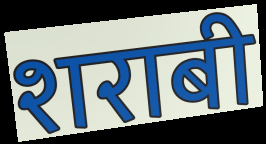
शराबी